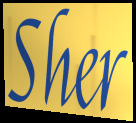
Sher